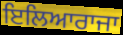
ਇਲਿਆਰਾਜਾ